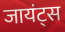
जायंट्स